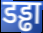
डड्ढा